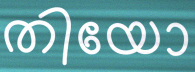
തിയോ